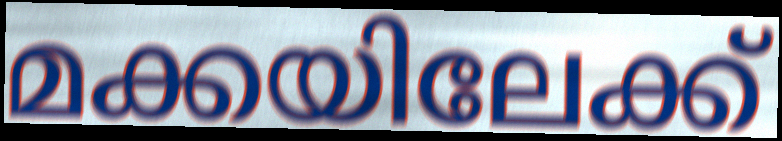
മക്കയിലേക്ക്